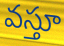
వస్తూ